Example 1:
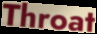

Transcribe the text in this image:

Throat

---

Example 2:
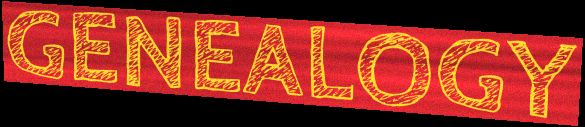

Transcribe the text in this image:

GENEALOGY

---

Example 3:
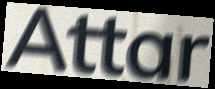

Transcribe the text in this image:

Attar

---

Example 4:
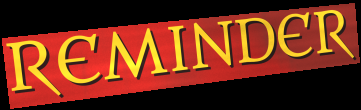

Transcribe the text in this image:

REMINDER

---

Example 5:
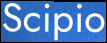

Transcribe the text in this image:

Scipio